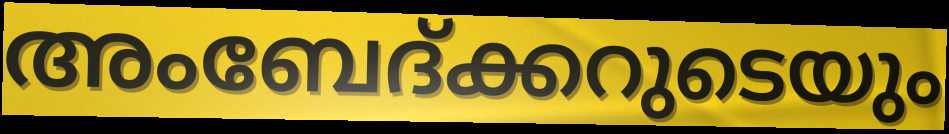
അംബേദ്ക്കറുടെയും